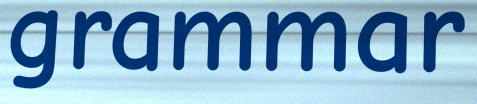
grammar